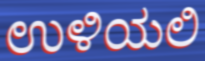
ಉಳಿಯಲಿ